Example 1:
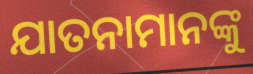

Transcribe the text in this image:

ଯାତନାମାନଙ୍କୁ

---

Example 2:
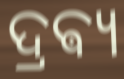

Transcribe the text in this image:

ଦ୍ରଵ୍ୟ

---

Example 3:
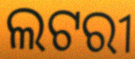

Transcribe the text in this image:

ଲଟରୀ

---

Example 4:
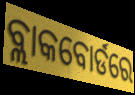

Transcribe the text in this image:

ବ୍ଲାକବୋର୍ଡରେ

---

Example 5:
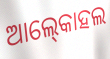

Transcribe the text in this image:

ଆଲ୍‍କୋହଲ